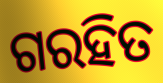
ଗରହିତ